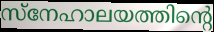
സ്നേഹാലയത്തിന്റെ